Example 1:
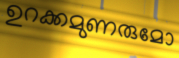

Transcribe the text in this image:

ഉറക്കമുണരുമോ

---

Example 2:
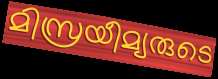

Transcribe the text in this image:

മിസ്രയീമ്യരുടെ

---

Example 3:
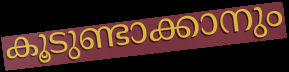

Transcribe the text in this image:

കൂടുണ്ടാക്കാനും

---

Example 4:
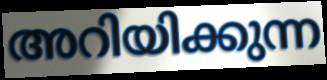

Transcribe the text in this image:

അറിയിക്കുന്ന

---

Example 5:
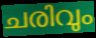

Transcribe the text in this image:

ചരിവും